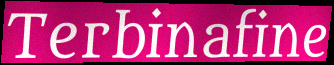
Terbinafine